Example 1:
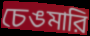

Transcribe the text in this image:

চেঙমারি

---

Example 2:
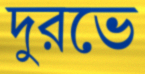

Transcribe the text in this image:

দুরভে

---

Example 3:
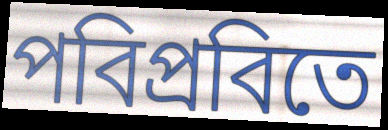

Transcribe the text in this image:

পবিপ্রবিতে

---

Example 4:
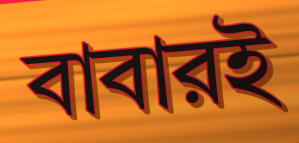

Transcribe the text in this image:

বাবারই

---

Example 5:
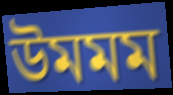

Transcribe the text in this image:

উমমম